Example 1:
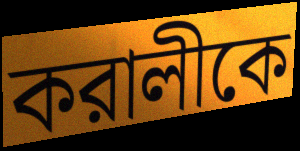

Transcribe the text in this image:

করালীকে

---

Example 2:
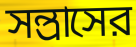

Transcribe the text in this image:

সন্ত্রাসের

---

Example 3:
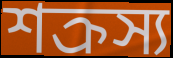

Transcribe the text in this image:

শক্রস্য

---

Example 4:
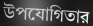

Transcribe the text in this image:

উপযোগিতার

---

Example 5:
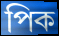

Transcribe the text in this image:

পিক